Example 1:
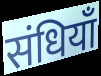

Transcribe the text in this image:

संधियाँ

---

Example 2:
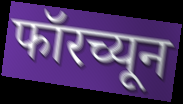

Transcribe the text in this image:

फॉरच्यून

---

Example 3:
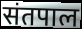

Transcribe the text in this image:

संतपाल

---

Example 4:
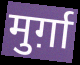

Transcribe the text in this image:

मुर्ग़ा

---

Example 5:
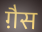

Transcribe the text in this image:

ग़ैस